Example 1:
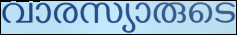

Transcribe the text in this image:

വാരസ്യാരുടെ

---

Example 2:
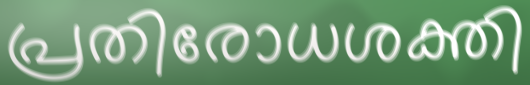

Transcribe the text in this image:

പ്രതിരോധശക്തി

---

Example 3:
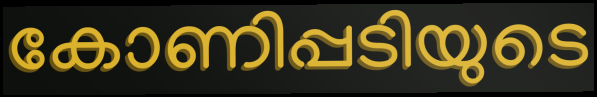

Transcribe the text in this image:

കോണിപ്പടിയുടെ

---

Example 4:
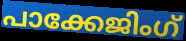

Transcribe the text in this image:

പാക്കേജിംഗ്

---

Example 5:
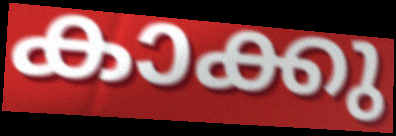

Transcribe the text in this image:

കാക്കു